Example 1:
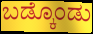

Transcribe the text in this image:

ಬಡ್ಕೊಂಡು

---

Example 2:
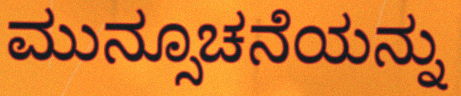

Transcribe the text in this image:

ಮುನ್ಸೂಚನೆಯನ್ನು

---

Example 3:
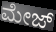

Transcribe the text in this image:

ಮೇಜ್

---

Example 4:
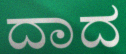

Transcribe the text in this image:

ದಾದ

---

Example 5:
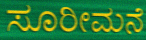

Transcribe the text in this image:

ಸೂರೀಮನೆ